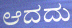
ಆದದು